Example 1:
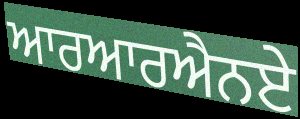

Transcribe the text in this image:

ਆਰਆਰਐਨਏ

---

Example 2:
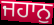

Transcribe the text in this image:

ਜਹਾਨੁ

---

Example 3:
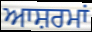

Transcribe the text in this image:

ਆਸ਼ਰਮਾਂ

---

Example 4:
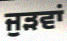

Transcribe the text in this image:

ਜੁੜਵਾਂ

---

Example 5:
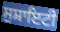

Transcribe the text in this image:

ਸੁਸ਼ਾਇਟੀ